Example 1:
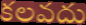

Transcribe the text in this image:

కలవదు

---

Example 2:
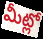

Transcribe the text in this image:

మీట్లో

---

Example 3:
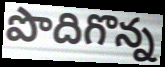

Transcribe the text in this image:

పొదిగొన్న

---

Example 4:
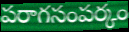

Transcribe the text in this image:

పరాగసంపర్కం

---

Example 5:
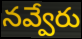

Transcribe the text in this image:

నవ్వేరు